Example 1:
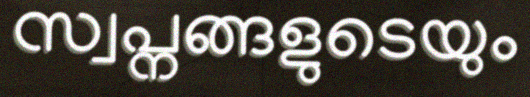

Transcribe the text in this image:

സ്വപ്നങ്ങളുടെയും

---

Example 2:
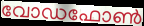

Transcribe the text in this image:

വോഡഫോൺ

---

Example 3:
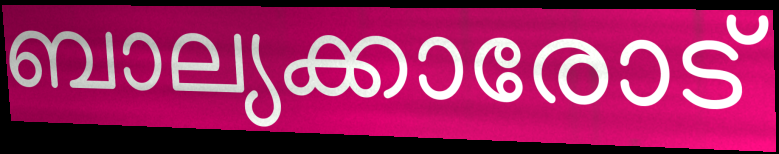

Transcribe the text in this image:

ബാല്യക്കാരോട്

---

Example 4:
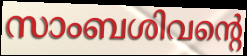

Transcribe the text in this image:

സാംബശിവന്റെ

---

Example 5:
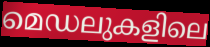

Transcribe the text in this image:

മെഡലുകളിലെ